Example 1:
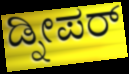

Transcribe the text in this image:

ಡ್ನೀಪರ್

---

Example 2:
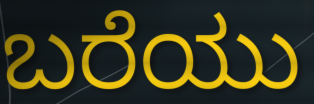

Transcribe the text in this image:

ಬರೆಯು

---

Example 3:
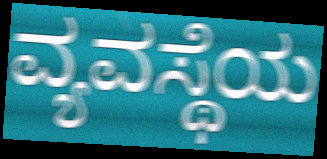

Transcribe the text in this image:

ವ್ಯವಸ್ಥೆಯ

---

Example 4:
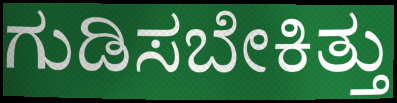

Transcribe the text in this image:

ಗುಡಿಸಬೇಕಿತ್ತು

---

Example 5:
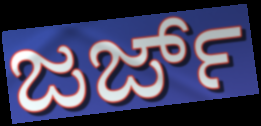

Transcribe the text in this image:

ಜರ್ಜ್